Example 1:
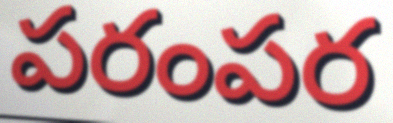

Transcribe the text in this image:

పరంపర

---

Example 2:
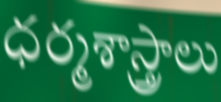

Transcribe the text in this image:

ధర్మశాస్త్రాలు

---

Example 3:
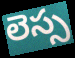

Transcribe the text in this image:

లెస్స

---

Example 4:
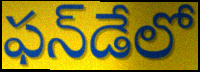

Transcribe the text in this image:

ఫన్‌డేలో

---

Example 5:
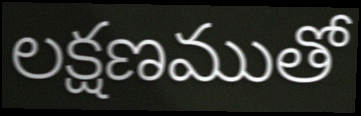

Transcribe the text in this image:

లక్షణముతో